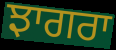
ਝਾਗਰਾ